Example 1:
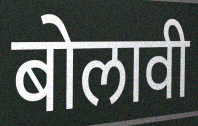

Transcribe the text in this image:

बोलावी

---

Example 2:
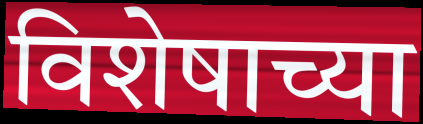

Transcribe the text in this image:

विशेषाच्या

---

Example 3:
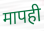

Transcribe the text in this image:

मापही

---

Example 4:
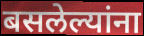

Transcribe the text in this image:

बसलेल्यांना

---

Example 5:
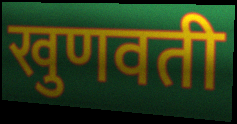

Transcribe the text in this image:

खुणवती